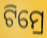
ଟିମ୍ରେ